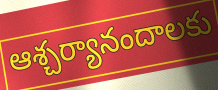
ఆశ్చర్యానందాలకు